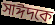
সাঈদকে